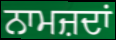
ਨਾਮਜ਼ਦਾਂ